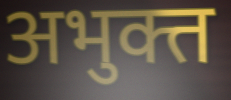
अभुक्त